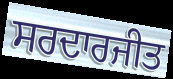
ਸਰਦਾਰਜੀਤ